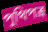
পুথিপত্র